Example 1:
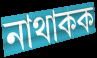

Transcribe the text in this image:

নাথাকক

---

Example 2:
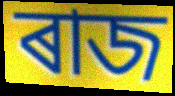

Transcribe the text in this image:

ৰাজ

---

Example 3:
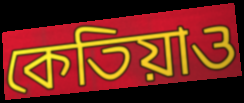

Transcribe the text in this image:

কেতিয়াও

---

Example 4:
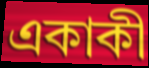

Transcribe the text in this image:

একাকী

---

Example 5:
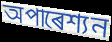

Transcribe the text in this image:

অপাৰেশ্যন